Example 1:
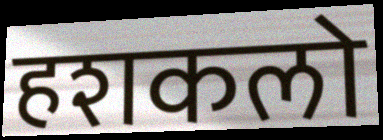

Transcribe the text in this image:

हशकलो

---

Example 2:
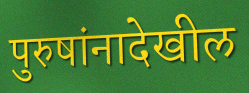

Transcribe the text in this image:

पुरुषांनादेखील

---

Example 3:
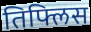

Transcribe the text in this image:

तिफ्लिस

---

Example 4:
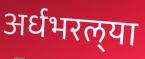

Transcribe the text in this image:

अर्धभरल्या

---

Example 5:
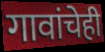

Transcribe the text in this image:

गावांचेही